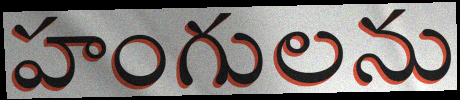
హంగులను